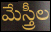
మేస్త్రీల